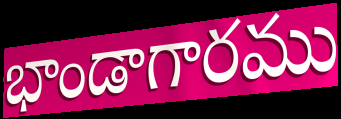
భాండాగారము